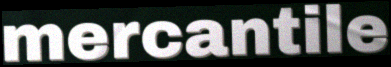
mercantile